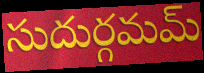
సుదుర్గమమ్